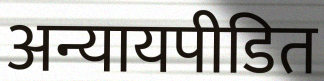
अन्यायपीडित